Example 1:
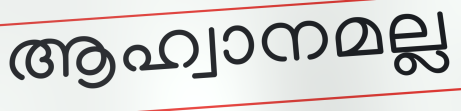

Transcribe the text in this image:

ആഹ്വാനമല്ല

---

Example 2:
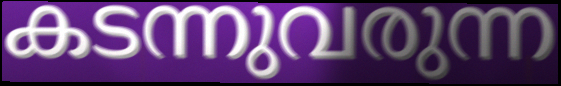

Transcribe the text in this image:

കടന്നുവരുന്ന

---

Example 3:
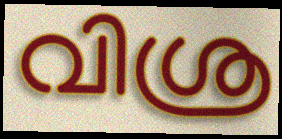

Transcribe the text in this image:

വിശ്ര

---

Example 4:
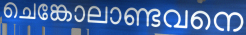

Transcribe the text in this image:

ചെങ്കോലാണ്ടവനെ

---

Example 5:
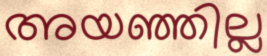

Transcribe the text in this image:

അയഞ്ഞില്ല